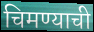
चिमण्याची